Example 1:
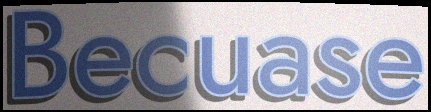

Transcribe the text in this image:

Becuase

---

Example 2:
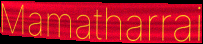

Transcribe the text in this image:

Mamatharrai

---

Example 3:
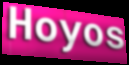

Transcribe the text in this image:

Hoyos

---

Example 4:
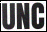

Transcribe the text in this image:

UNC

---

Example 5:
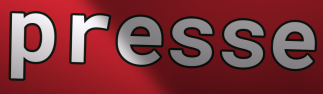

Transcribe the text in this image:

presse